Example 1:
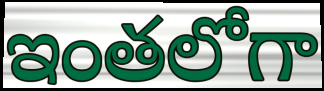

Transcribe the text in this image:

ఇంతలోగా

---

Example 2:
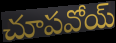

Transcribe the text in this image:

చూపవోయ్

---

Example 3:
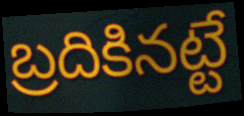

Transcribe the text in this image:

బ్రదికినట్టే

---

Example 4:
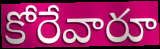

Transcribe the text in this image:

కోరేవారూ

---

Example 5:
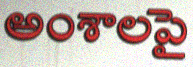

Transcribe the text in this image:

అంశాలపై